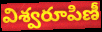
విశ్వరూపిణీ